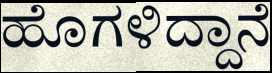
ಹೊಗಳಿದ್ದಾನೆ